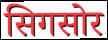
सिगसोर